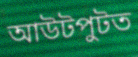
আউটপুটত